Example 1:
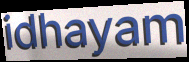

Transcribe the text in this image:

idhayam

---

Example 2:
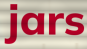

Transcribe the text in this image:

jars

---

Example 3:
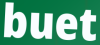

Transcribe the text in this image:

buet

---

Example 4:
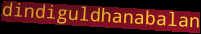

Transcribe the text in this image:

dindiguldhanabalan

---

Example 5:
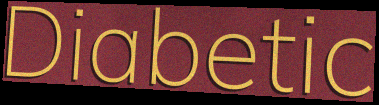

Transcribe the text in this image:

Diabetic